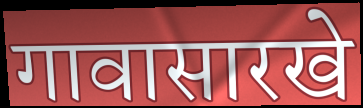
गावासारखे